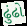
ઢુંઢો